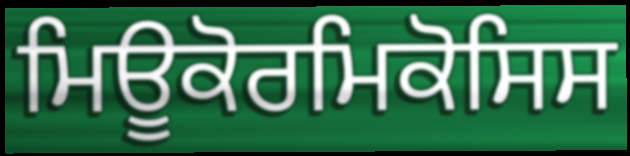
ਮਿਊਕੋਰਮਿਕੋਸਿਸ